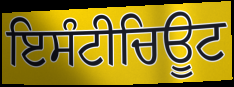
ਇਸੰਟੀਚਿਊਟ